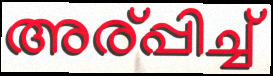
അര്പ്പിച്ച്